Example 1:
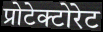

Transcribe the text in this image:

प्रोटेक्टोरेट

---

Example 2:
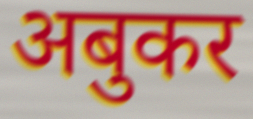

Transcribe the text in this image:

अबुकर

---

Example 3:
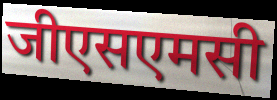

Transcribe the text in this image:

जीएसएमसी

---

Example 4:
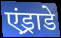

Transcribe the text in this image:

एंड्राडे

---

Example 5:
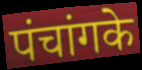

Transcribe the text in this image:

पंचांगके